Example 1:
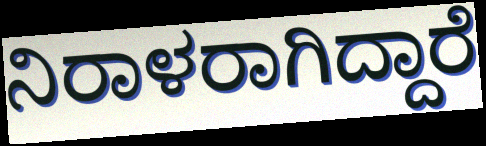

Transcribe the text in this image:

ನಿರಾಳರಾಗಿದ್ದಾರೆ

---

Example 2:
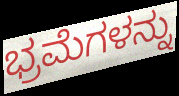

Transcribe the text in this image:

ಭ್ರಮೆಗಳನ್ನು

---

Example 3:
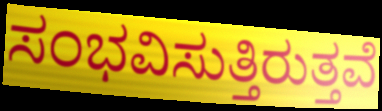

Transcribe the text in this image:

ಸಂಭವಿಸುತ್ತಿರುತ್ತವೆ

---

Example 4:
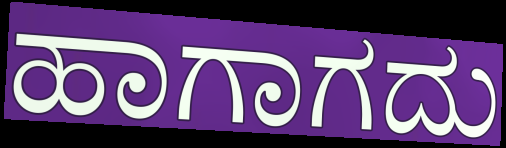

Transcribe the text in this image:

ಹಾಗಾಗದು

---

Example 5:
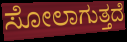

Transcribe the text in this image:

ಸೋಲಾಗುತ್ತದೆ